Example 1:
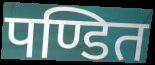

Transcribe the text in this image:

पण्डित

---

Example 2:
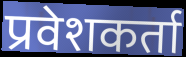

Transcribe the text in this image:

प्रवेशकर्ता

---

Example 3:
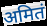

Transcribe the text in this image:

अमितं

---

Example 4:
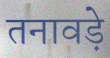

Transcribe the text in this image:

तनावड़े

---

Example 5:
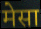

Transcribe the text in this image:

मेसा